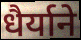
धैर्याने